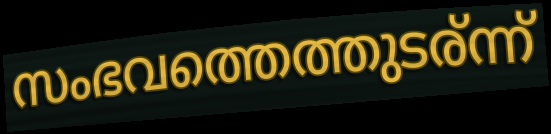
സംഭവത്തെത്തുടര്ന്ന്